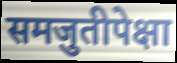
समजुतीपेक्षा